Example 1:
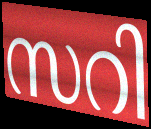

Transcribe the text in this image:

സറി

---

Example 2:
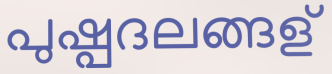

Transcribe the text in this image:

പുഷ്പദലങ്ങള്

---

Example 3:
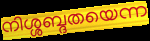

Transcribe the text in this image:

നിശ്ശബ്ദതയെന്ന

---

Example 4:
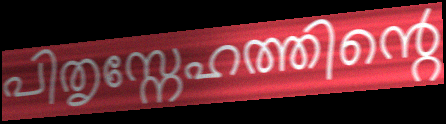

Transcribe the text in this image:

പിതൃസ്നേഹത്തിന്റെ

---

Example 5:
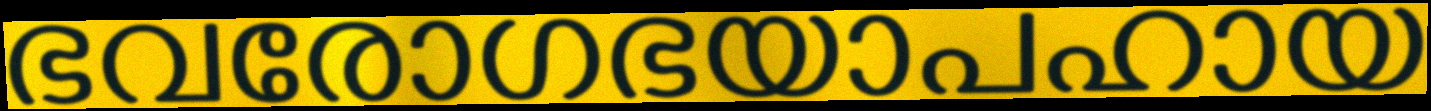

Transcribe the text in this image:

ഭവരോഗഭയാപഹായ